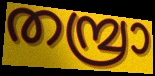
തമ്പ്രാ